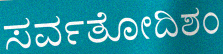
ಸರ್ವತೋದಿಶಂ